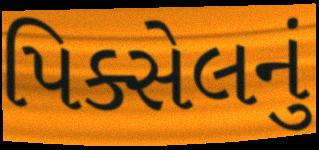
પિક્સેલનું